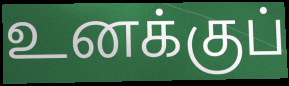
உனக்குப்